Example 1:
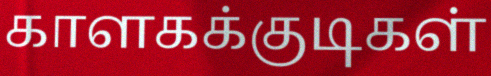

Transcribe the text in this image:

காளகக்குடிகள்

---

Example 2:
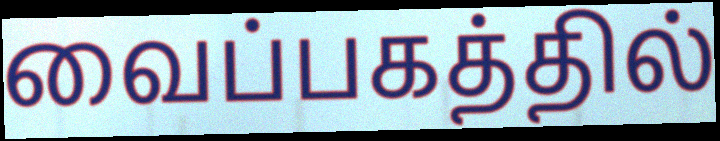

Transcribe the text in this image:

வைப்பகத்தில்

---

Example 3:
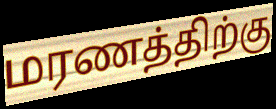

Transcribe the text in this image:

மரணத்திற்கு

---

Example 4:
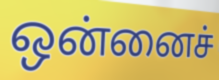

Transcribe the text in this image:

ஒன்னைச்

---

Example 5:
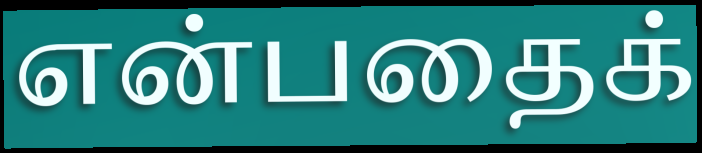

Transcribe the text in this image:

என்பதைக்